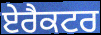
ਏਰੈਕਟਰ